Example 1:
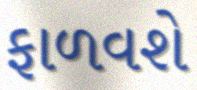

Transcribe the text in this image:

ફાળવશે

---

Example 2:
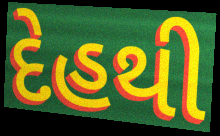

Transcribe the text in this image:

દેહથી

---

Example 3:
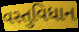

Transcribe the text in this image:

વસ્તુવિધાન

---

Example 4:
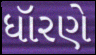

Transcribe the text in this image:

ધૉરણે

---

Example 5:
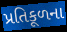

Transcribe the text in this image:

પ્રતિકૂળના